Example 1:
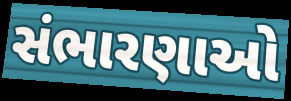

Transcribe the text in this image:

સંભારણાઓ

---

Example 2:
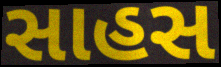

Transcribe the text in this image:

સાહસ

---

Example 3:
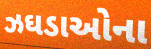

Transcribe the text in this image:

ઝઘડાઓના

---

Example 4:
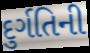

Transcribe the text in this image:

દુર્ગતિની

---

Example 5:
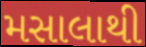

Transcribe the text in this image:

મસાલાથી